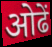
ओढें